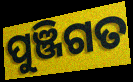
ପୁଞ୍ଜିଗତ